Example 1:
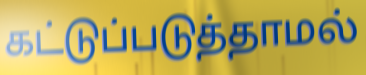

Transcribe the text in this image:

கட்டுப்படுத்தாமல்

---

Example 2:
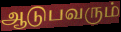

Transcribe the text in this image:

ஆடுபவரும்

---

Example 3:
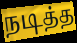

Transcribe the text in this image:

நடித்த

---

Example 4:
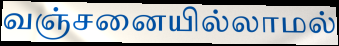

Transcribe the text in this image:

வஞ்சனையில்லாமல்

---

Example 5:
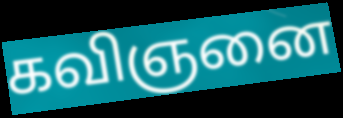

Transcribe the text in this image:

கவிஞனை